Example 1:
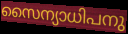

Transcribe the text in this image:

സൈന്യാധിപനു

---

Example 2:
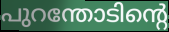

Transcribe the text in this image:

പുറന്തോടിന്റെ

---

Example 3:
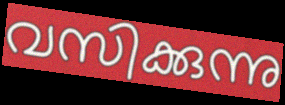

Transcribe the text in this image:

വസിക്കുന്നു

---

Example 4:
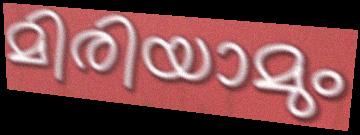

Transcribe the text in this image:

മിരിയാമും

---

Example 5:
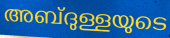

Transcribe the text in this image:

അബ്ദുള്ളയുടെ